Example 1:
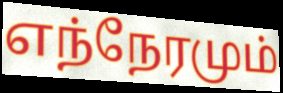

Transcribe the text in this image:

எந்நேரமும்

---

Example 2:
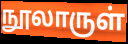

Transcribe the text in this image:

நூலாருள்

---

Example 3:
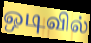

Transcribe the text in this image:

ஒடிவில்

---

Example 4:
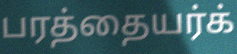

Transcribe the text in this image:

பரத்தையர்க்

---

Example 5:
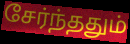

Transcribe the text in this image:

சேர்ந்ததும்